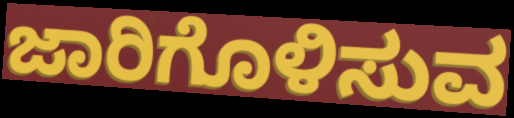
ಜಾರಿಗೊಳಿಸುವ